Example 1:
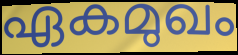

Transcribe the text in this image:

ഏകമുഖം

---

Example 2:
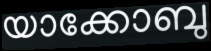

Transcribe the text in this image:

യാക്കോബു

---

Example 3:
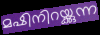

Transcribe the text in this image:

മഷിനിറയ്ക്കുന്ന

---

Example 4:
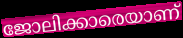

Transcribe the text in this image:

ജോലിക്കാരെയാണ്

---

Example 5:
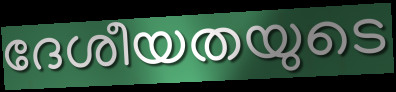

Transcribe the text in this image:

ദേശീയതയുടെ